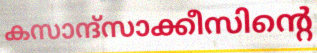
കസാന്ദ്സാക്കീസിന്റെ